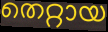
തെറ്റായ